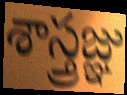
శాస్త్రజ్ఞు